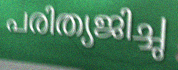
പരിത്യജിച്ചു